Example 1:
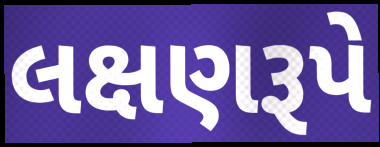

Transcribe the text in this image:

લક્ષણરૂપે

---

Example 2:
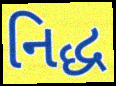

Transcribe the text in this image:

નિદ્ધ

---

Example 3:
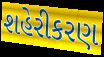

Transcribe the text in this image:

શહેરીકરણ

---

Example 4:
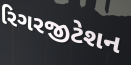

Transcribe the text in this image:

રિગરજીટેશન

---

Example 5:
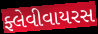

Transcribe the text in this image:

ફ્લેવીવાયરસ